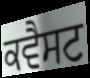
ਕਵੈਸਟ